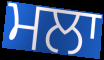
ਮਲਾ